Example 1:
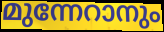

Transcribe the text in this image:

മുന്നേറാനും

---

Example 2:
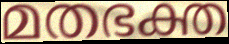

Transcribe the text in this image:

മതഭക്ത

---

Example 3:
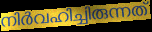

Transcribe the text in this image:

നിർവഹിച്ചിരുന്നത്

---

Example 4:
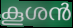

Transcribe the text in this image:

കൂശൻ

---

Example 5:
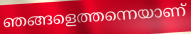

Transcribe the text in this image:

ഞങ്ങളെത്തന്നെയാണ്